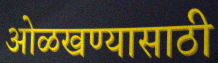
ओळखण्यासाठी